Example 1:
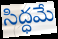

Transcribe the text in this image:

సిద్ధమే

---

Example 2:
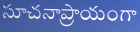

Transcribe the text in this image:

సూచనాప్రాయంగా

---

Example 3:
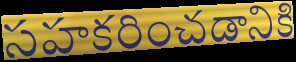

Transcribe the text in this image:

సహకరించడానికి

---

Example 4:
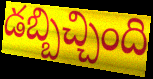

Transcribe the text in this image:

డబ్బిచ్చింది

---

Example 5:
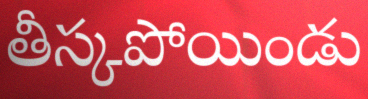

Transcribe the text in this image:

తీస్కపోయిండు